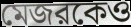
মেজরকেও